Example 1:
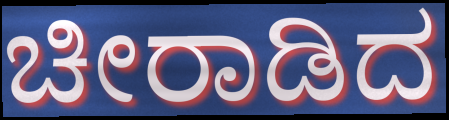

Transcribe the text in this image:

ಚೀರಾಡಿದ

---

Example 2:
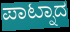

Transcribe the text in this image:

ಪಾಟ್ನಾದ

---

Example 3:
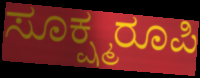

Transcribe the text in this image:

ಸೂಕ್ಷ್ಮರೂಪಿ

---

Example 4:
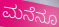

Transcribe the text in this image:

ಮನೆನೂ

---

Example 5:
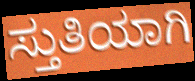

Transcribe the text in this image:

ಸ್ತುತಿಯಾಗಿ